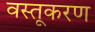
वस्तूकरण